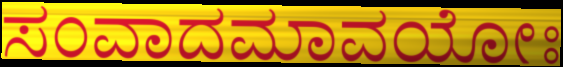
ಸಂವಾದಮಾವಯೋಃ